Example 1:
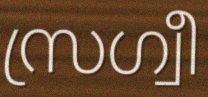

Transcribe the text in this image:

സ്രഗ്വീ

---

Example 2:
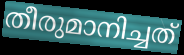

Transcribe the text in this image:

തീരുമാനിച്ചത്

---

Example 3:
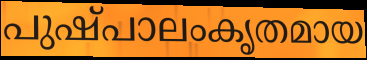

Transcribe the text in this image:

പുഷ്പാലംകൃതമായ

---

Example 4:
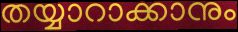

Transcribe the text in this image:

തയ്യാറാക്കാനും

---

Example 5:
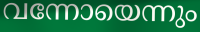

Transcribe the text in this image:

വന്നോയെന്നും